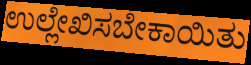
ಉಲ್ಲೇಖಿಸಬೇಕಾಯಿತು